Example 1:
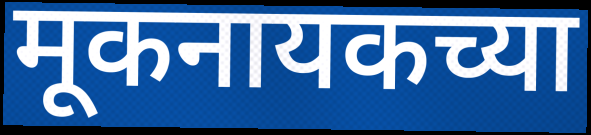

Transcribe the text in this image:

मूकनायकच्या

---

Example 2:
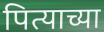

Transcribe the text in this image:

पित्याच्या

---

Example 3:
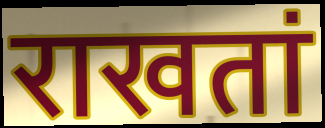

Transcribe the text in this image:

राखतां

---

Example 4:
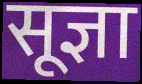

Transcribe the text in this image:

सूज्ञा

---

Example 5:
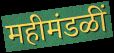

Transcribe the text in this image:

महीमंडळीं